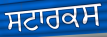
ਸਟਾਰਕਸ